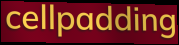
cellpadding